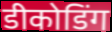
डीकोडिंग